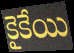
కైకేయి